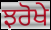
ਝਰੋਖੇ